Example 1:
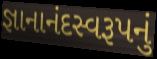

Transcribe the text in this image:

જ્ઞાનાનંદસ્વરૂપનું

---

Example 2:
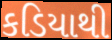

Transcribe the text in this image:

કડિયાથી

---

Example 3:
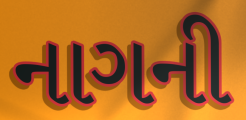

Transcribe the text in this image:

નાગની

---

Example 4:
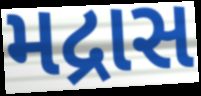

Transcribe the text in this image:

મદ્રાસ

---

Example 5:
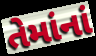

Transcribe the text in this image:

તેમાંનાં